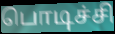
பொடிச்சி